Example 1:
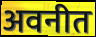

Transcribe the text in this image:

अवनीत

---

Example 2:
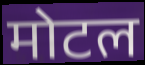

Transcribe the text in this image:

मोटल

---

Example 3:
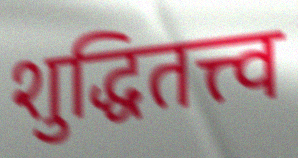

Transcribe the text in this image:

शुद्धितत्त्व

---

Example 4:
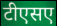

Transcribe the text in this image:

टीएसए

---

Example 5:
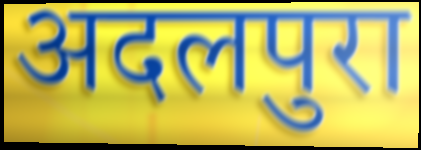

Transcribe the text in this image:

अदलपुरा